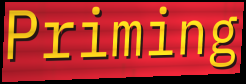
Priming